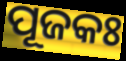
ପୂଜକଃ